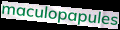
maculopapules